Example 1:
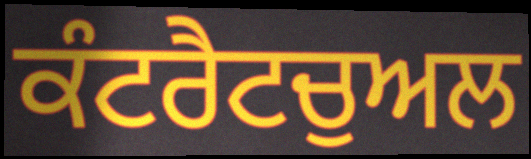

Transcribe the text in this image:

ਕੰਟਰੈਟਚੁਅਲ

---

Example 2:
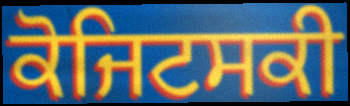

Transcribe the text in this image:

ਕੋਜਿਟਸਕੀ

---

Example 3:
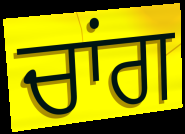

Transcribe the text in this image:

ਚਾਂਗ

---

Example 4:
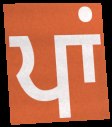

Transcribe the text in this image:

ਪਾਂ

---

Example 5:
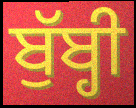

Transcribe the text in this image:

ਬੁੱਬ੍ਹੀ